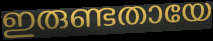
ഇരുണ്ടതായേ